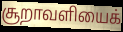
சூறாவளியைக்